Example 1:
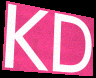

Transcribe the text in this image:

KD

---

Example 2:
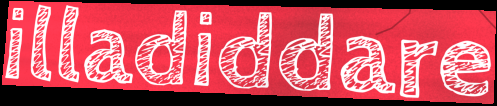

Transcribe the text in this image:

illadiddare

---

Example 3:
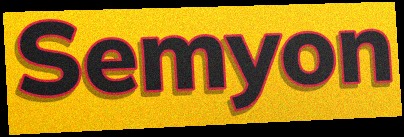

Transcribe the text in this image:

Semyon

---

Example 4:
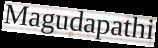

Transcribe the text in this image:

Magudapathi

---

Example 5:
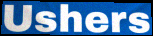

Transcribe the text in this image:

Ushers